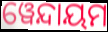
ୱେନ୍ଦାୟମ